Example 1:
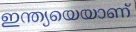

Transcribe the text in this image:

ഇന്ത്യയെയാണ്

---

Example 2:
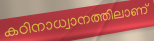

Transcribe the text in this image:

കഠിനാധ്വാനത്തിലാണ്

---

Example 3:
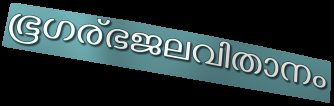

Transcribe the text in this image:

ഭൂഗര്ഭജലവിതാനം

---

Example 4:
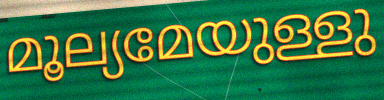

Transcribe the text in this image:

മൂല്യമേയുള്ളു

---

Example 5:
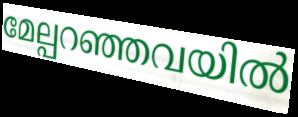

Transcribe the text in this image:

മേല്പറഞ്ഞവയിൽ